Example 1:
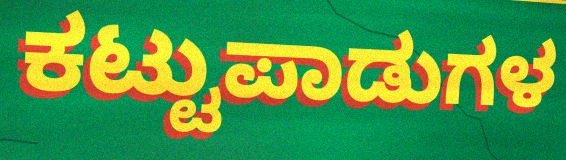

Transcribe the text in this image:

ಕಟ್ಟುಪಾಡುಗಳ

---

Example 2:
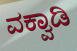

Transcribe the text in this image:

ವಕ್ವಾಡಿ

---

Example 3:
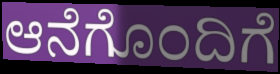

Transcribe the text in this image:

ಆನೆಗೊಂದಿಗೆ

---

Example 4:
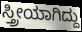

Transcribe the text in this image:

ಸ್ತ್ರೀಯಾಗಿದ್ದು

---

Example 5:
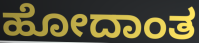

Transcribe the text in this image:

ಹೋದಾಂತ